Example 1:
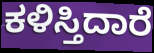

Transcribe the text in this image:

ಕಳಿಸ್ತಿದಾರೆ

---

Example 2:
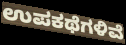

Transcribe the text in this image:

ಉಪಕಥೆಗಳಿವೆ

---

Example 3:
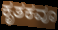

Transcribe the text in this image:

ಕೃತಕವೂ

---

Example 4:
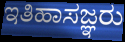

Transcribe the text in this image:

ಇತಿಹಾಸಜ್ಞರು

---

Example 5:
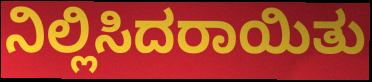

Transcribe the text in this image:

ನಿಲ್ಲಿಸಿದರಾಯಿತು